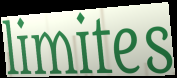
limites